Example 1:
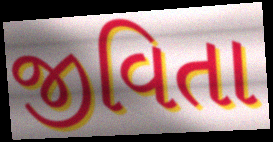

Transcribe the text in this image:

જીવિતા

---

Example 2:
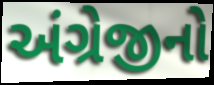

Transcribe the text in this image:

અંગ્રેજીનો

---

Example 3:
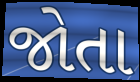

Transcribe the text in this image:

જોતા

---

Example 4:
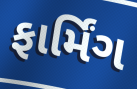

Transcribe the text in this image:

ફાર્મિંગ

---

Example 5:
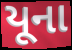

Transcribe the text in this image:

યૂના